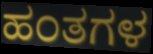
ಹಂತಗಳ